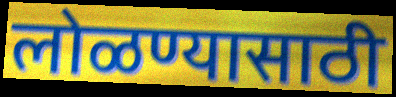
लोळण्यासाठी